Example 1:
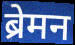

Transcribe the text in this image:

ब्रेमन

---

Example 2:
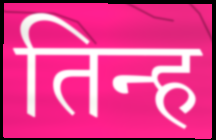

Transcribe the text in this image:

तिन्ह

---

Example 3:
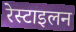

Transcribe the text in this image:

रेस्टाइलन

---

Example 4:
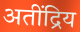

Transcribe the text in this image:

अतींद्रिय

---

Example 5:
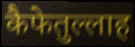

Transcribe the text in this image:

कैफेतुल्लाह